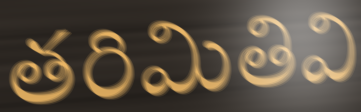
తరిమితివి